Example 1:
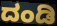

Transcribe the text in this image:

ದಂಡಿ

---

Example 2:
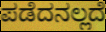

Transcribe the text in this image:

ಪಡೆದನಲ್ಲದೆ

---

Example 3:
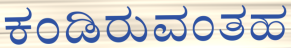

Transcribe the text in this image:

ಕಂಡಿರುವಂತಹ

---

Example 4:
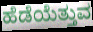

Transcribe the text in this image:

ಹೆಡೆಯೆತ್ತುವ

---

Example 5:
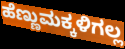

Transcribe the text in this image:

ಹೆಣ್ಣುಮಕ್ಕಳಿಗಲ್ಲ